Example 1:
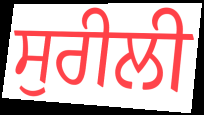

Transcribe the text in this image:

ਸੁਰੀਲੀ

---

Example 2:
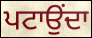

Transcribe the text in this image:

ਪਟਾਉਂਦਾ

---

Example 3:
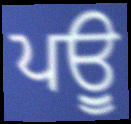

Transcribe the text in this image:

ਪਉੂ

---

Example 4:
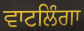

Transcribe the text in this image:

ਵਾਟਲਿੰਗਾ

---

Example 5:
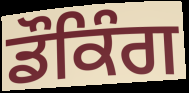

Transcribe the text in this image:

ਡੌਕਿੰਗ